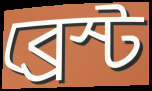
ব্রেস্ট